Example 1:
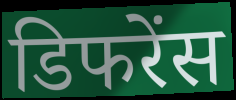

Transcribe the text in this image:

डिफरेंस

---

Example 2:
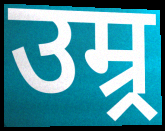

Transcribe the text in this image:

उम्र्र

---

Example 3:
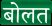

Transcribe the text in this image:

बोलत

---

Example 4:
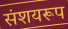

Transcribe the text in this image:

संशयरूप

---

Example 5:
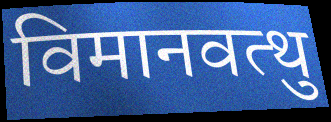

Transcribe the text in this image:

विमानवत्थु